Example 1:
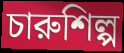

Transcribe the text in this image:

চারুশিল্প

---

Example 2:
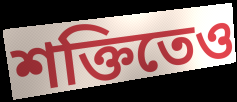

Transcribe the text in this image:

শক্তিতেও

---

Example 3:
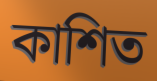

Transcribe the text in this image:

কাশিত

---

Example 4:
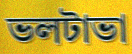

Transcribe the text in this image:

ভলটাভা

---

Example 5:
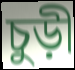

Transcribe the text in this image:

চুড়ী